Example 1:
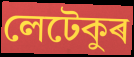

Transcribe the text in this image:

লেটেকুৰ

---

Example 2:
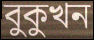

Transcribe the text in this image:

বুকুখন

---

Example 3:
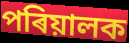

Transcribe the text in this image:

পৰিয়ালক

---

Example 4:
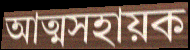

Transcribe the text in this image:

আত্মসহায়ক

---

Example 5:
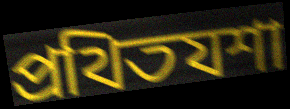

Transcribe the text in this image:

প্ৰথিতযশা